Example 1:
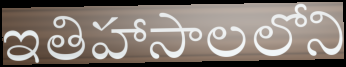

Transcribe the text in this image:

ఇతిహాసాలలోని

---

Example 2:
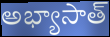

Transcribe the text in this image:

అభ్యాసాత్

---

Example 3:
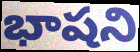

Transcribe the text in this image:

భాషని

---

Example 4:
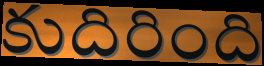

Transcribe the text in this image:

కుదిరింది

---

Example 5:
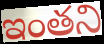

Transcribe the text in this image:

ఇంతని